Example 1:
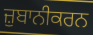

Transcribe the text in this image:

ਜ਼ੁਬਾਨੀਕਰਨ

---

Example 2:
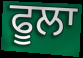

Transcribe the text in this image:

ਫੂਲਾ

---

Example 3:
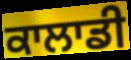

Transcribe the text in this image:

ਕਾਲਾਡੀ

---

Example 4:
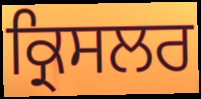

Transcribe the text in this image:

ਕ੍ਰਿਸਲਰ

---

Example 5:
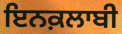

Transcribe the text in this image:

ਇਨਕ਼ਲਾਬੀ